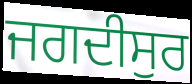
ਜਗਦੀਸੁਰ